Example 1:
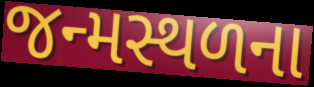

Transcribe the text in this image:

જન્મસ્થળના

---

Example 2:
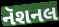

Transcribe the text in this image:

નૅશનલ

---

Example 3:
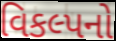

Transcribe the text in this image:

વિકલ્પનો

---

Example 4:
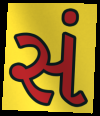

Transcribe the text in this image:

સં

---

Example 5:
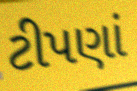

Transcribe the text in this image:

ટીપણાં